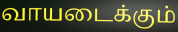
வாயடைக்கும்